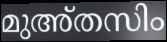
മുഅ്തസിം